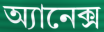
অ্যানেক্স